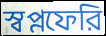
স্বপ্নফেরি